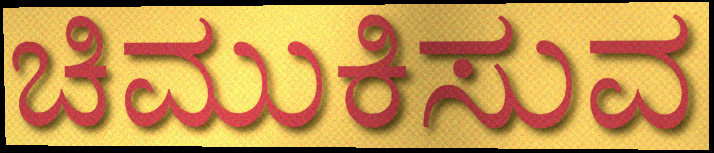
ಚಿಮುಕಿಸುವ